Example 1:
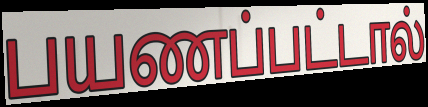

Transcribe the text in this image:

பயணப்பட்டால்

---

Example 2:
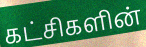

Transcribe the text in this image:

கட்சிகளின்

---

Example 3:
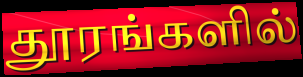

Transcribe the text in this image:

தூரங்களில்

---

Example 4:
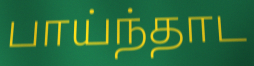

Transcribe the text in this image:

பாய்ந்தாட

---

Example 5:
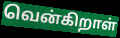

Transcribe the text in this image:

வென்கிறாள்